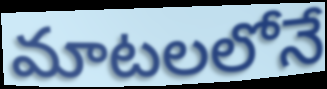
మాటలలోనే